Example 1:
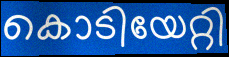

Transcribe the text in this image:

കൊടിയേറ്റി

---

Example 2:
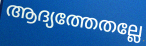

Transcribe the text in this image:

ആദ്യത്തേതല്ലേ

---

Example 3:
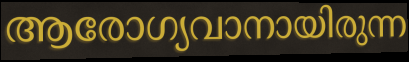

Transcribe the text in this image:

ആരോഗ്യവാനായിരുന്ന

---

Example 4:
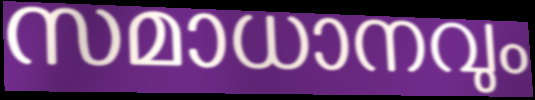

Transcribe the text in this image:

സമാധാനവും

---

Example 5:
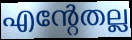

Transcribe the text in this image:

എന്റേതല്ല